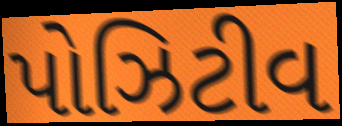
પોઝિટીવ